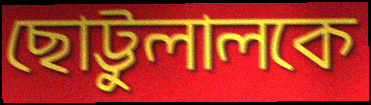
ছোট্টুলালকে